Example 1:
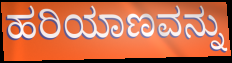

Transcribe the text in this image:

ಹರಿಯಾಣವನ್ನು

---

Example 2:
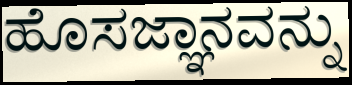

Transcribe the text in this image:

ಹೊಸಜ್ಞಾನವನ್ನು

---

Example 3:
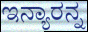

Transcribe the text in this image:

ಇನ್ಯಾರನ್ನ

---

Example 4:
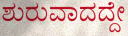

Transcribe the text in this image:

ಶುರುವಾದದ್ದೇ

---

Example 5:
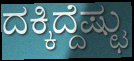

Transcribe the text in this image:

ದಕ್ಕಿದ್ದೆಷ್ಟು